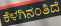
ಕೆಳಗಿನಂತಿದೆ